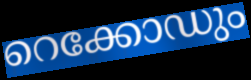
റെക്കോഡും